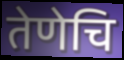
तेणेचि